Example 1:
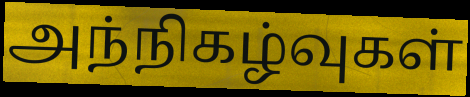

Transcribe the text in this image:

அந்நிகழ்வுகள்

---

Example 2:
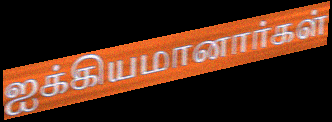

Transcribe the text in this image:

ஐக்கியமானார்கள்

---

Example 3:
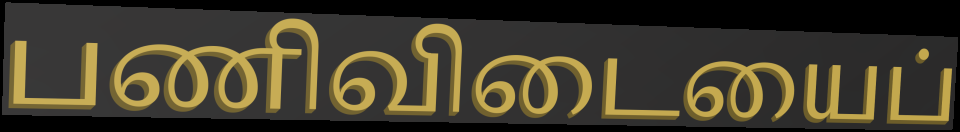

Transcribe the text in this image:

பணிவிடையைப்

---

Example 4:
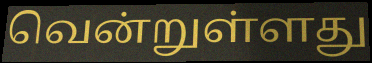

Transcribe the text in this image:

வென்றுள்ளது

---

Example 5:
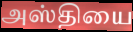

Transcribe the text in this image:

அஸ்தியை